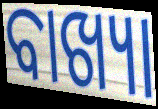
ବାଖ୍ୟା